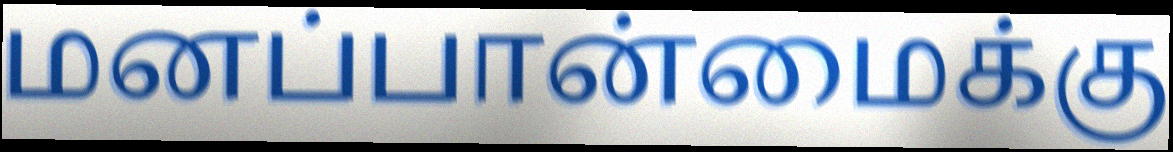
மனப்பான்மைக்கு